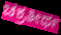
ಚಕ್ರತೀರ್ಥ